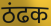
ठंढक